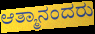
ಆತ್ಮಾನಂದರು